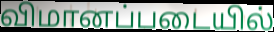
விமானப்படையில்